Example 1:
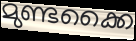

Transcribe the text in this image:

മുണ്ടക്കൈ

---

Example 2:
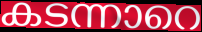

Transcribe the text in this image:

കടന്നാറെ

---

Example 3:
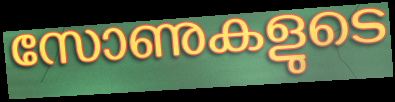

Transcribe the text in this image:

സോണുകളുടെ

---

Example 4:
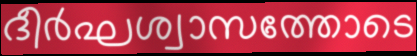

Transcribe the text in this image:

ദീർഘശ്വാസത്തോടെ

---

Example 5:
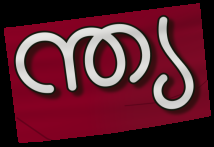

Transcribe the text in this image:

ന്ത്യ